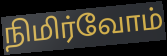
நிமிர்வோம்